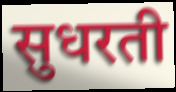
सुधरती